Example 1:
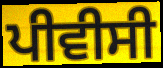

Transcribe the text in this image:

ਪੀਵੀਸੀ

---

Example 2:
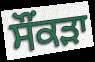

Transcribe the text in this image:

ਸੌਂਕੜਾ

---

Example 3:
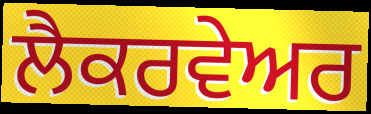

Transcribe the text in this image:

ਲੈਕਰਵੇਅਰ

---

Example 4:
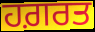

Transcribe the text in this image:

ਹਗ਼ਰਤ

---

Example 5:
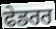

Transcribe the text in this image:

ਫੇਡਰਰ